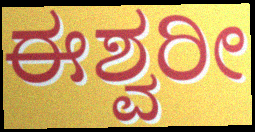
ಈಶ್ವರೀ